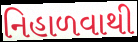
નિહાળવાથી